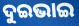
ଦୁଇଭାଇ